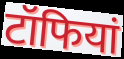
टॉफियां